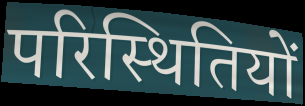
परिस्थितियों